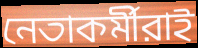
নেতাকর্মীরাই